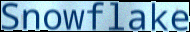
Snowflake